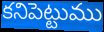
కనిపెట్టుము